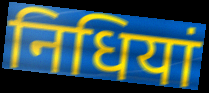
निधियां